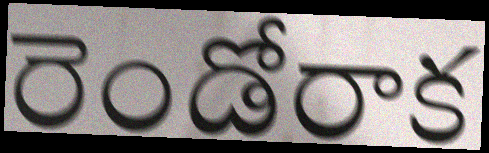
రెండోరాక